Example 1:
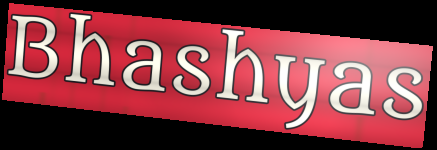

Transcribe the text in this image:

Bhashyas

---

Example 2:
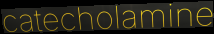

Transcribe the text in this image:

catecholamine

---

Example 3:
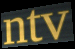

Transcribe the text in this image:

ntv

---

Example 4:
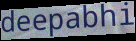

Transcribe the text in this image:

deepabhi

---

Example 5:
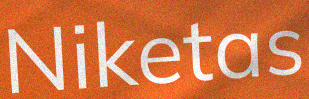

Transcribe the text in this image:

Niketas